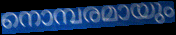
നൊമ്പരമായും